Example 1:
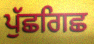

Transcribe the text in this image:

ਪੁੱਛਗਿਛ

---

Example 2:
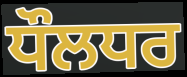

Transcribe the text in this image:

ਧੌਲਧਰ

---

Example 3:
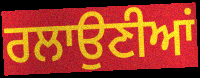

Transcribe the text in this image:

ਰਲਾਉਣੀਆਂ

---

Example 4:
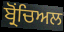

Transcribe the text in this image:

ਬ੍ਰੋਂਚਿਅਲ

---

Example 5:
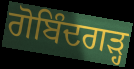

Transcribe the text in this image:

ਗੋਬਿੰਦਗੜ੍ਹ